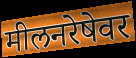
मीलनरेषेवर